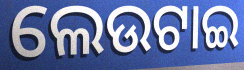
ଲେଉଟାଇ